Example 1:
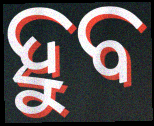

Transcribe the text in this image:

ହୁବ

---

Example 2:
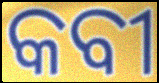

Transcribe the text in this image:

କବୀ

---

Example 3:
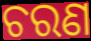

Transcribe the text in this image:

ଚରଣ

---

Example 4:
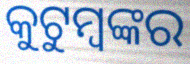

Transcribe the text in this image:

କୁଟୁମ୍ବଙ୍କର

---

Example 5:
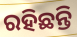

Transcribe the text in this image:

ରହିଛନ୍ତି